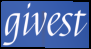
givest